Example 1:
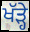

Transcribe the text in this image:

ਖੱੜ੍ਹੇ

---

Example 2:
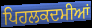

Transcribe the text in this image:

ਪਿਹਲਕਦਮੀਆਂ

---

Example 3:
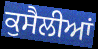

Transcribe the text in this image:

ਕੁਸੈਲੀਆਂ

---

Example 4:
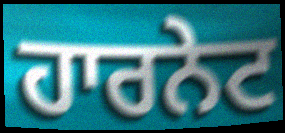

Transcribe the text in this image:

ਹਾਰਨੇਟ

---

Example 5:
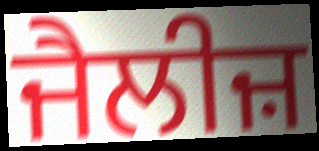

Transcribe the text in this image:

ਜੈਲੀਜ਼